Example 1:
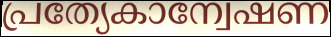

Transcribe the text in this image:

പ്രത്യേകാന്വേഷണ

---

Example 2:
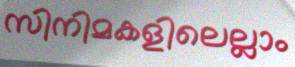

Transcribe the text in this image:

സിനിമകളിലെല്ലാം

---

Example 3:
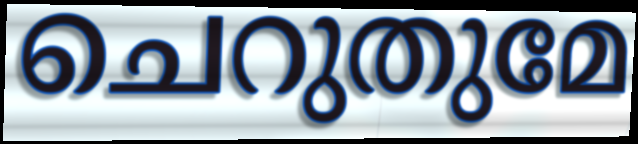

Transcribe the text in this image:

ചെറുതുമേ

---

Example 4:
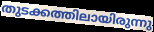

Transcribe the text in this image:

തുടക്കത്തിലായിരുന്നു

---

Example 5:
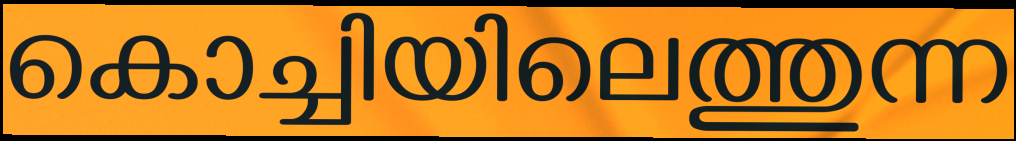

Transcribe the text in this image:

കൊച്ചിയിലെത്തുന്ന